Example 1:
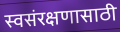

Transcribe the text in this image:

स्वसंरक्षणासाठी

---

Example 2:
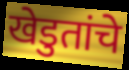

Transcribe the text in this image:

खेडुतांचे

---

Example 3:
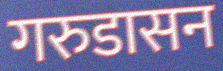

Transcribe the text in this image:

गरुडासन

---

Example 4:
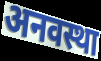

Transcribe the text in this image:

अनवस्था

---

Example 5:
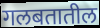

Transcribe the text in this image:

गलबतातील